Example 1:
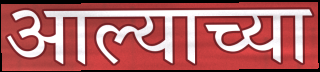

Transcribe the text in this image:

आल्याच्या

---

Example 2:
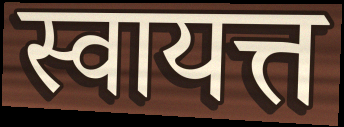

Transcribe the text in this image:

स्वायत्त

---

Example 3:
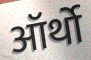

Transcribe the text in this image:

ऑर्थो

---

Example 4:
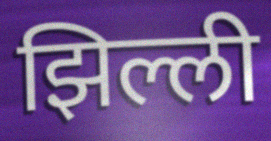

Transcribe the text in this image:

झिल्ली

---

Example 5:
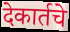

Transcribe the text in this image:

देकार्तचे